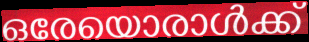
ഒരേയൊരാൾക്ക്